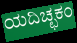
ಯದಿಚ್ಛಕಂ